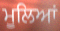
ਮੂਲਿਆਂ